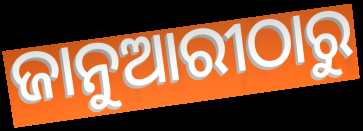
ଜାନୁଆରୀଠାରୁ